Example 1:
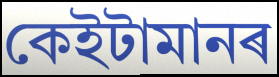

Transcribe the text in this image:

কেইটামানৰ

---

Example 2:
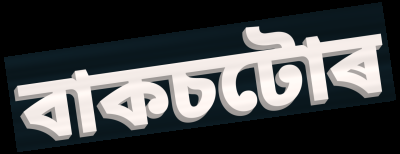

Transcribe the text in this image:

বাকচটোৰ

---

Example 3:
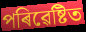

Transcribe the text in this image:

পৰিৱেষ্টিত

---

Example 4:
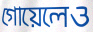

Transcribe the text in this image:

গোয়েলেও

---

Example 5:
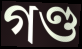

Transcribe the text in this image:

গণ্ড